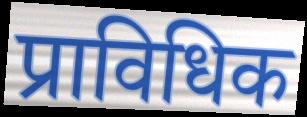
प्राविधिक